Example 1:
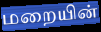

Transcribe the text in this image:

மறையின்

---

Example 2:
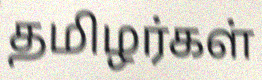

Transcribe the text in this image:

தமிழர்கள்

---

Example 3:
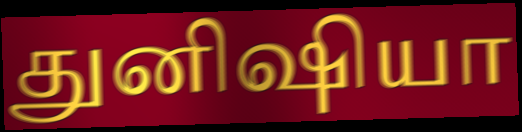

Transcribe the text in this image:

துனிஷியா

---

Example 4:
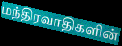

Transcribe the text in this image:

மந்திரவாதிகளின்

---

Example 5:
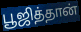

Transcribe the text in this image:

பூஜித்தான்